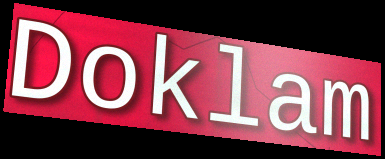
Doklam